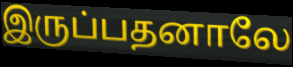
இருப்பதனாலே